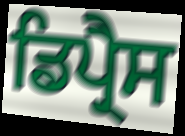
ਡਿਪ੍ਰੈਸ